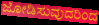
ಜೋಡಿಸುವುದರಿಂದ